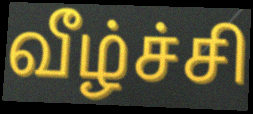
வீழ்ச்சி